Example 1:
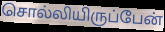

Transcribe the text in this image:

சொல்லியிருப்பேன்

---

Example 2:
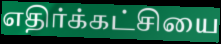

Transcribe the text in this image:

எதிர்க்கட்சியை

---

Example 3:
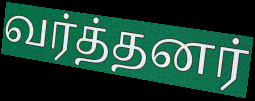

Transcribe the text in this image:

வர்த்தனர்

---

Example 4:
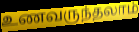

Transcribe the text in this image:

உணவருந்தலாம்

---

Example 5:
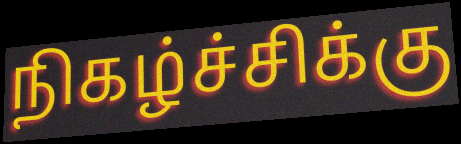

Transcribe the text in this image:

நிகழ்ச்சிக்கு